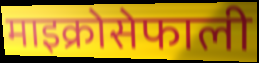
माइक्रोसेफाली